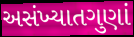
અસંખ્યાતગુણાં